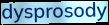
dysprosody